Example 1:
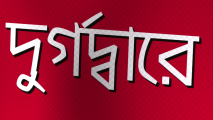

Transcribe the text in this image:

দুর্গদ্বারে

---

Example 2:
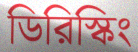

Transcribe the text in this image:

ডিরিস্কিং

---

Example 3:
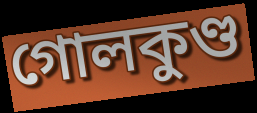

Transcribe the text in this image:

গোলকুণ্ড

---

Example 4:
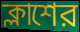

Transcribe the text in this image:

ক্লাশের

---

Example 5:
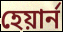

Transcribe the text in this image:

হেয়ার্ন